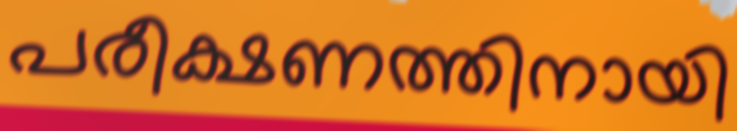
പരീക്ഷണത്തിനായി